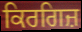
ਕਿਰਗਿਜ਼